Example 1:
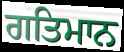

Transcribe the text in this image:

ਗਤਿਮਾਨ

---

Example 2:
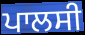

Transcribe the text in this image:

ਪਾਲਸੀ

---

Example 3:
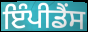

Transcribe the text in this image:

ਇੰਪੀਡੈਂਸ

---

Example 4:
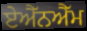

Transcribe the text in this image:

ਏਐੱਨਐੱਮ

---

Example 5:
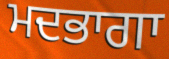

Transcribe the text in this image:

ਮਦਭਾਗਾ